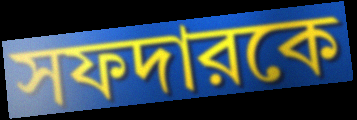
সফদারকে